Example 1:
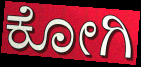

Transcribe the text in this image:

ಕೋಗಿ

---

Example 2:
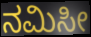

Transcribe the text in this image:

ನಮಿಸೀ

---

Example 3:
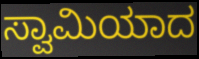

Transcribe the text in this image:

ಸ್ವಾಮಿಯಾದ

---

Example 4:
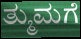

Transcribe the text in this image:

ತ್ಮುಮಗೆ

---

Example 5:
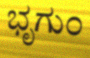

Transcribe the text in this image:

ಭೃಗುಂ